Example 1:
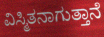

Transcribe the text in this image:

ವಿಸ್ಮಿತನಾಗುತ್ತಾನೆ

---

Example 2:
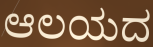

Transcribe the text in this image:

ಆಲಯದ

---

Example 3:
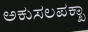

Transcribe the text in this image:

ಅಕುಸಲಪಕ್ಖಾ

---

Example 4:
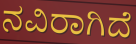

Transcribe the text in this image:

ನವಿರಾಗಿದೆ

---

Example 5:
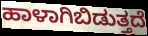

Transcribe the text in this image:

ಹಾಳಾಗಿಬಿಡುತ್ತದೆ